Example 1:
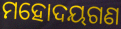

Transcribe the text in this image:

ମହୋଦୟଗଣ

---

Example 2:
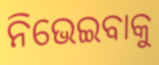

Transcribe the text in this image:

ନିଭେଇବାକୁ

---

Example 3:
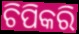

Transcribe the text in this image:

ଚିପିକରି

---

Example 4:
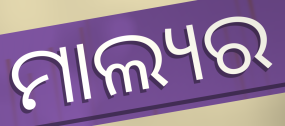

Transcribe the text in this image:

ମାଲ୍ୟର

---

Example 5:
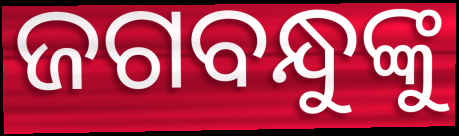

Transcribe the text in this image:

ଜଗବନ୍ଧୁଙ୍କୁ